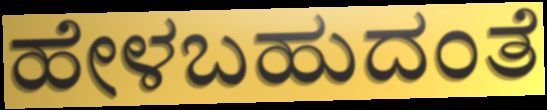
ಹೇಳಬಹುದಂತೆ